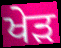
ਖੇੜ